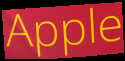
Apple